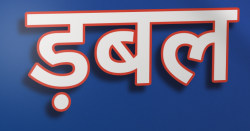
ड़बल